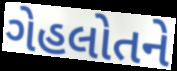
ગેહલોતને